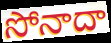
సోనాదా